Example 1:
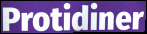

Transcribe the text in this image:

Protidiner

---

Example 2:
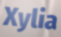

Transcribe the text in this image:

Xylia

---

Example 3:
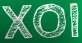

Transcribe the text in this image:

XOI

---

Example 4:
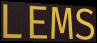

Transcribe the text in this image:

LEMS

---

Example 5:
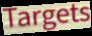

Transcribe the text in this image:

Targets